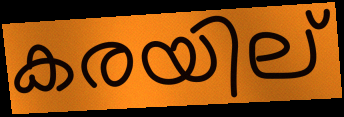
കരയില്